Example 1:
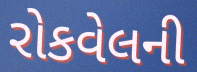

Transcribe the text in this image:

રોકવેલની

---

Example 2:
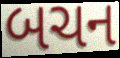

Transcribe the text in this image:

બચન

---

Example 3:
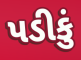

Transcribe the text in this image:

પડીકું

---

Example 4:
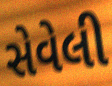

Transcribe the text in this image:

સેવેલી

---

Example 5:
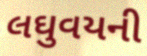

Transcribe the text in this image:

લઘુવયની